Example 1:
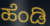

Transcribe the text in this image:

ಹೆಂಡಿ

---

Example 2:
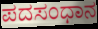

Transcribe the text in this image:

ಪದಸಂಧಾನ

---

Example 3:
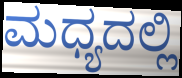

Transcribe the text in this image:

ಮಧ್ಯದಲ್ಲಿ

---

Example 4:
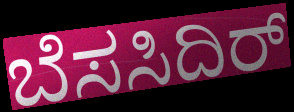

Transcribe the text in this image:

ಬೆಸಸಿದಿರ್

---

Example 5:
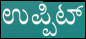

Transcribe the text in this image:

ಉಪ್ಪಿಟ್